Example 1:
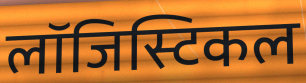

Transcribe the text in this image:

लॉजिस्टिकल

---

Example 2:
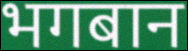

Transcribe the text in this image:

भगबान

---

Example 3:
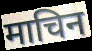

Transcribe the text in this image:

माचिन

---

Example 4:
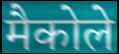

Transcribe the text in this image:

मैकोले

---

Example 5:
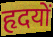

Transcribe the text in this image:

हृदयों